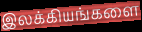
இலக்கியங்களை